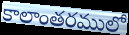
కాలాంతరములో